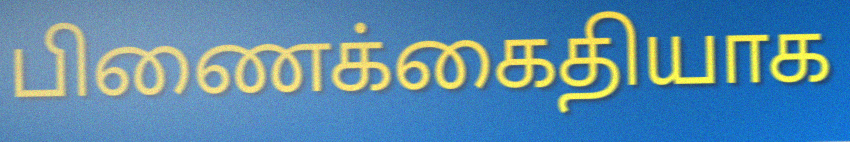
பிணைக்கைதியாக